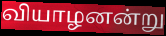
வியாழனன்று